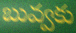
బువ్వకు